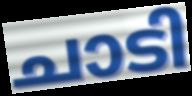
ചാടി